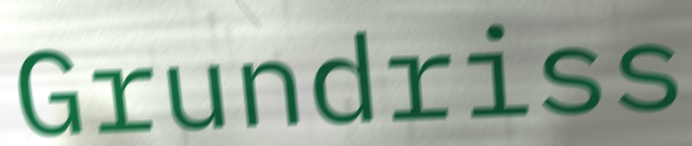
Grundriss